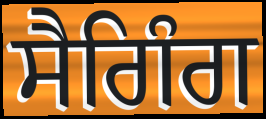
ਸੈਗਿੰਗ